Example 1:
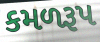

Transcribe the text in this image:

કમળરૂપ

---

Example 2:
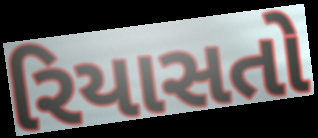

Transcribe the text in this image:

રિયાસતો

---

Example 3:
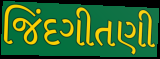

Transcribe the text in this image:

જિંદગીતણી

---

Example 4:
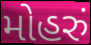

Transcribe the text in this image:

મોહરું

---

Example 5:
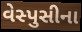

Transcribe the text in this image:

વેસ્પુસીના